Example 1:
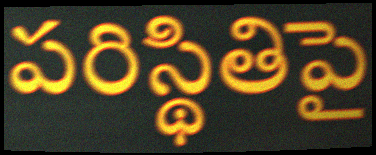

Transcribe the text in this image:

పరిస్థితిపై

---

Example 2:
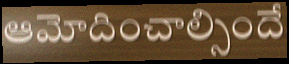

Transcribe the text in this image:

ఆమోదించాల్సిందే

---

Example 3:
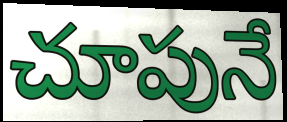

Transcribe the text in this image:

చూపునే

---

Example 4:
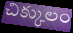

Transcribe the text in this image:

చిక్కులం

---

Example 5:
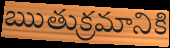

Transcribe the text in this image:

ఋతుక్రమానికి